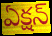
ఏక్షన్